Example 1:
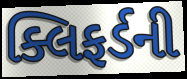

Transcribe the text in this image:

ક્લિફર્ડની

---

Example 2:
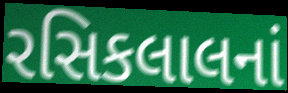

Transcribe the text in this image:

રસિકલાલનાં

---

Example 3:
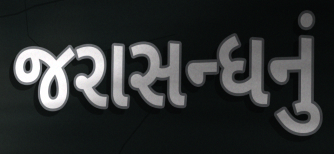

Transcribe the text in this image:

જરાસન્ધનું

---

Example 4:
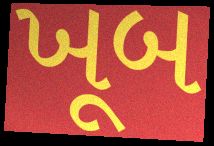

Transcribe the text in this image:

ખૂબ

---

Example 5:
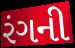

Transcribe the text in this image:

રંગની